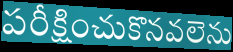
పరీక్షించుకొనవలెను